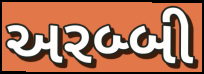
અરબ્બી